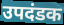
उपदंडक